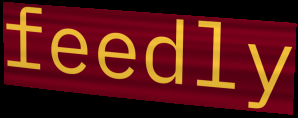
feedly